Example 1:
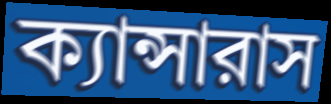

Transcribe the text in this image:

ক্যান্সারাস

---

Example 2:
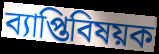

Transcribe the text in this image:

ব্যাপ্তিবিষয়ক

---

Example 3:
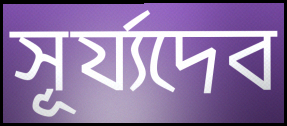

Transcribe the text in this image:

সূর্য্যদেব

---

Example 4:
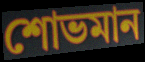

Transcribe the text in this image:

শোভমান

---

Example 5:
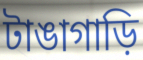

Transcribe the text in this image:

টাঙাগাড়ি